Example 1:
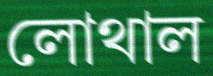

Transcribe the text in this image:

লোথাল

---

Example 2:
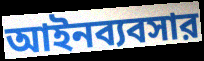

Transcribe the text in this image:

আইনব্যবসার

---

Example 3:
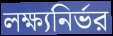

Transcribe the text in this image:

লক্ষ্যনির্ভর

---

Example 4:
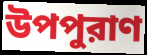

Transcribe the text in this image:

উপপুরাণ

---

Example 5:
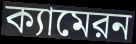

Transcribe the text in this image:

ক্যামেরন